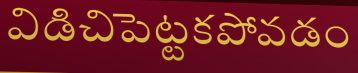
విడిచిపెట్టకపోవడం